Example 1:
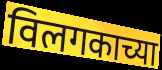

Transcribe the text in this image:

विलगकाच्या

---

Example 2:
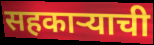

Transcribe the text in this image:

सहकाऱ्याची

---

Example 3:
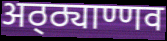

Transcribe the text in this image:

अठ्ठ्याण्णव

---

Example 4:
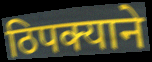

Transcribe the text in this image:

ठिपक्याने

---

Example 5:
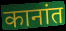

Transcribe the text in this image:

कानांत